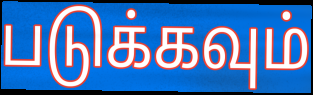
படுக்கவும்